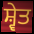
ਸ਼੍ਵੇਤ